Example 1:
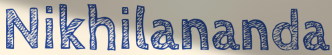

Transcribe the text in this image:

Nikhilananda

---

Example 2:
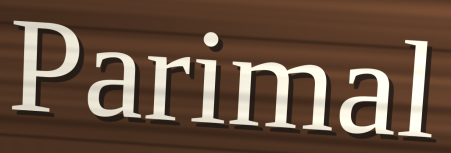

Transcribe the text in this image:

Parimal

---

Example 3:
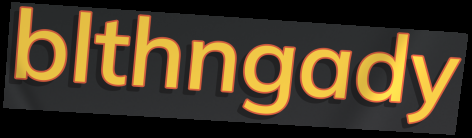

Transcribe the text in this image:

blthngady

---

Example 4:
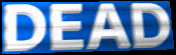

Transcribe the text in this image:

DEAD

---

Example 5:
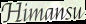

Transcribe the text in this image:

Himansu